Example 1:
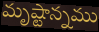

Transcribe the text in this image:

మృష్టాన్నము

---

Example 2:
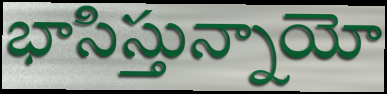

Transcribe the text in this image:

భాసిస్తున్నాయో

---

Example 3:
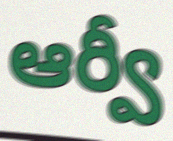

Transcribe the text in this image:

ఆర్వీ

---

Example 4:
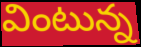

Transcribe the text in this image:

వింటున్న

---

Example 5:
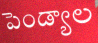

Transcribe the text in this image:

పెండ్యాల